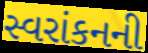
સ્વરાંકનની